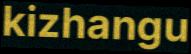
kizhangu